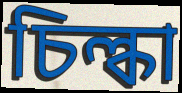
চিল্কা